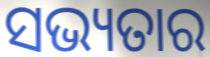
ସଭ୍ୟତାର